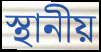
স্থানীয়